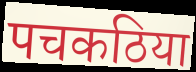
पचकठिया